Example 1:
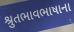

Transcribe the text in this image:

શ્રુતભાવભાષાના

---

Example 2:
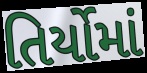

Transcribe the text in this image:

તિર્યોમાં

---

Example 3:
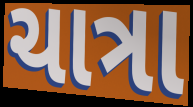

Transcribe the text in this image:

ચાત્રા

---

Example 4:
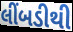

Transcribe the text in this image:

લીંબડીથી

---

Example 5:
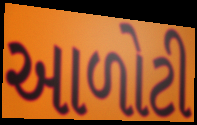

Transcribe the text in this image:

આળોટી